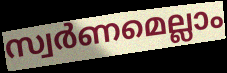
സ്വർണമെല്ലാം